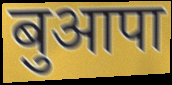
बुआपा